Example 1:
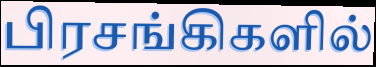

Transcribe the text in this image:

பிரசங்கிகளில்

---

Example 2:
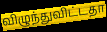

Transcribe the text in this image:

விழுந்துவிட்டதா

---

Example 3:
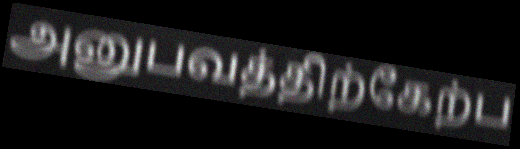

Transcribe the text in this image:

அனுபவத்திற்கேற்ப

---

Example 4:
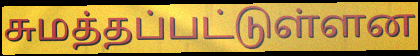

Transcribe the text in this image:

சுமத்தப்பட்டுள்ளன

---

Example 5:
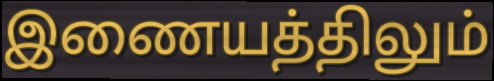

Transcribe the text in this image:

இணையத்திலும்